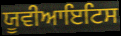
ਯੂਵੀਆਇਟਿਸ